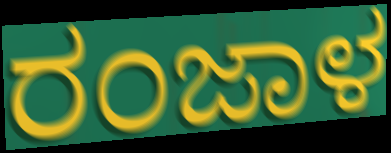
ರಂಜಾಳ